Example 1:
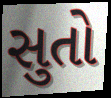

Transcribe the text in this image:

સુતો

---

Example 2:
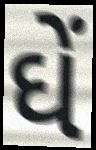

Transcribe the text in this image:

ઘેં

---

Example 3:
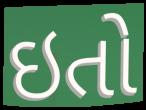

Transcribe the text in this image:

ઇતો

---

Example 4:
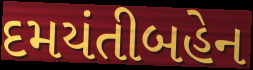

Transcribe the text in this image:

દમયંતીબહેન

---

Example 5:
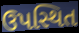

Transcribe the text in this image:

ઉપસ્થિત